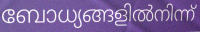
ബോധ്യങ്ങളിൽനിന്ന്